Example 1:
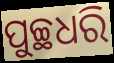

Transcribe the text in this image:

ପୁଚ୍ଛଧରି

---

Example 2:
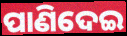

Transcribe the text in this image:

ପାଣିଦେଇ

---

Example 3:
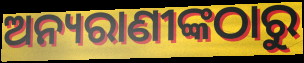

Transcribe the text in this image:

ଅନ୍ୟରାଣୀଙ୍କଠାରୁ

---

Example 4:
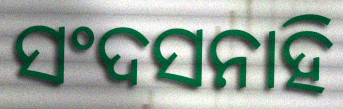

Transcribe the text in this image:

ସଂଦସନାହି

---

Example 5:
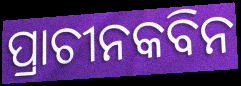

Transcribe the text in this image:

ପ୍ରାଚୀନକବିନ